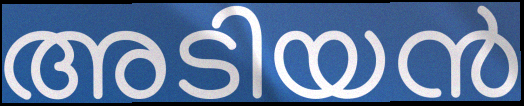
അടിയൻ